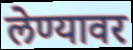
लेण्यावर